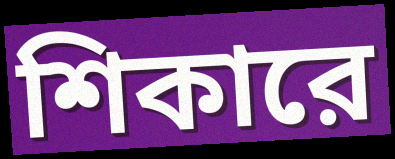
শিকারে